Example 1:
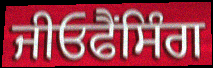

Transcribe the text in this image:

ਜੀਓਫੈਂਸਿੰਗ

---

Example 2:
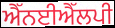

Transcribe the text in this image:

ਐੱਨਈਐੱਲਪੀ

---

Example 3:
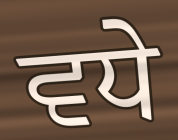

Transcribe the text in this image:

ਵਧੇ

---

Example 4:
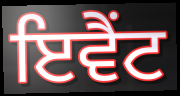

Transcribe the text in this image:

ਇਵੈਂਟ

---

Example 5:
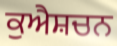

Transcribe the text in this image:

ਕੁਐਸ਼ਚਨ